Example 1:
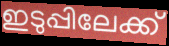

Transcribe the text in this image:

ഇടുപ്പിലേക്ക്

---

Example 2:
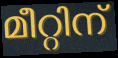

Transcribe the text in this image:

മീറ്റിന്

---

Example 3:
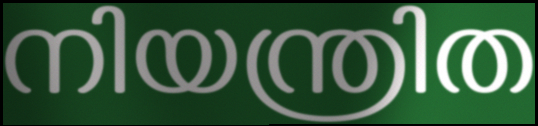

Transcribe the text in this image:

നിയന്ത്രിത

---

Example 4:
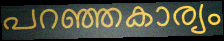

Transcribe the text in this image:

പറഞ്ഞകാര്യം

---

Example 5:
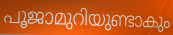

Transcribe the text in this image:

പൂജാമുറിയുണ്ടാകും